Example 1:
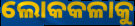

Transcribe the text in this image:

ଲୋକକଳାକୁ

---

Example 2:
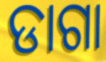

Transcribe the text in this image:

ଡାଗା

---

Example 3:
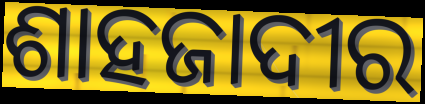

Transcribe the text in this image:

ଶାହଜାଦୀର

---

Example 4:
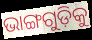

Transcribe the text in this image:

ଭାଙ୍ଗଗୁଡ଼ିକୁ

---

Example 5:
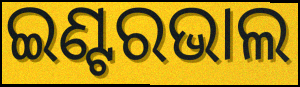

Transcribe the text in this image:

ଇଣ୍ଟରଭାଲ